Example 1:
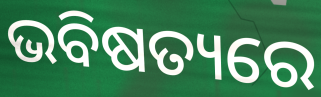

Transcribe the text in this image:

ଭବିଷତ୍ୟରେ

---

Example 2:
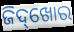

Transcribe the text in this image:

ଜିଦ୍‌ଖୋର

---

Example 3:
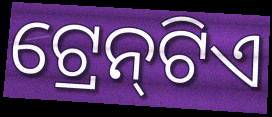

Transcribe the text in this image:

ଟ୍ରେନ୍‌ଟିଏ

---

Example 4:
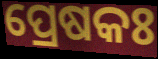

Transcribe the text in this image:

ପ୍ରେଷକଃ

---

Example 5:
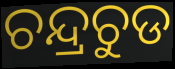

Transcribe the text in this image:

ଚନ୍ଦ୍ରଚୁଡ